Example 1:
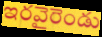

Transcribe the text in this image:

ఇరవైరెండు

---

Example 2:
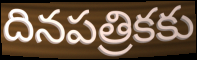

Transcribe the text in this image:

దినపత్రికకు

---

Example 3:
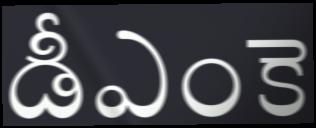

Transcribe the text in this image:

డీఎంకె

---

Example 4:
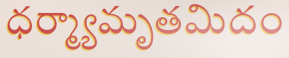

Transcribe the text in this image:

ధర్మ్యామృతమిదం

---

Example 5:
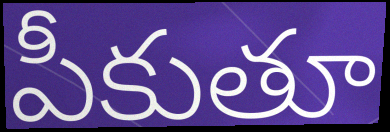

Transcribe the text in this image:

పీకుతూ